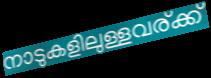
നാടുകളിലുള്ളവര്ക്ക്